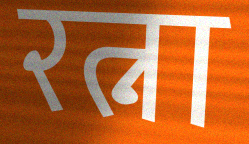
रत्ना